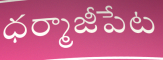
ధర్మాజీపేట